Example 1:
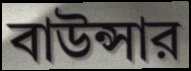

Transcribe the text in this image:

বাউন্সার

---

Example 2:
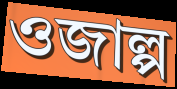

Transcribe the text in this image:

ওজাল্প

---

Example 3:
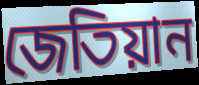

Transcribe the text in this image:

জেতিয়ান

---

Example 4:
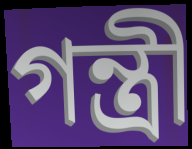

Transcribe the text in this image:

গন্ত্রী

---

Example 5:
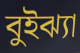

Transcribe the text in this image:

বুইঝ্যা